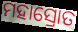
ମହାସ୍ରୋତ